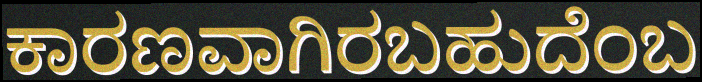
ಕಾರಣವಾಗಿರಬಹುದೆಂಬ